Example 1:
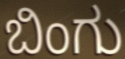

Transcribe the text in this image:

ಬಿಂಗು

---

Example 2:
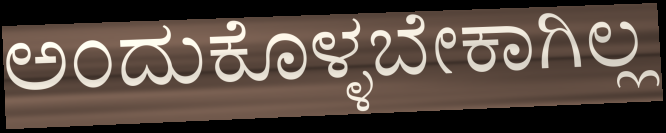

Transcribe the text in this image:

ಅಂದುಕೊಳ್ಳಬೇಕಾಗಿಲ್ಲ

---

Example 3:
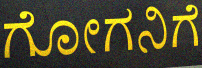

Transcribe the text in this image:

ಗೋಗನಿಗೆ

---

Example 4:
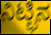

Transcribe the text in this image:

ನಿಟ್ಟಿನ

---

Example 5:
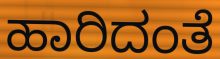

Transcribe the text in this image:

ಹಾರಿದಂತೆ